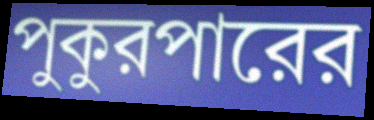
পুকুরপারের